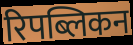
रिपब्लिकन